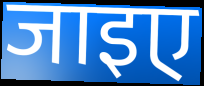
जाइए